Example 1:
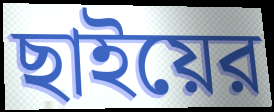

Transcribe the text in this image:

ছাইয়ের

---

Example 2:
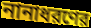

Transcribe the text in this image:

নানাধরণের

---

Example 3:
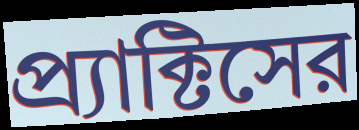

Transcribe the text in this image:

প্র্যাক্টিসের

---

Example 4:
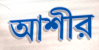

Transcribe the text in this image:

আশীর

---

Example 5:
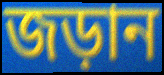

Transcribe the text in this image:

জড়ান